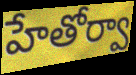
హేతోర్వా